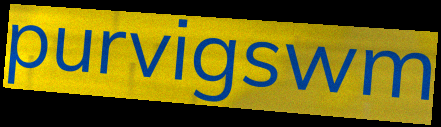
purvigswm